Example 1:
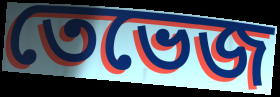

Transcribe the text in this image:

তেভেজ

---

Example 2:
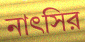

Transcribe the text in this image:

নাৎসির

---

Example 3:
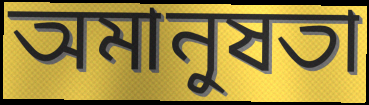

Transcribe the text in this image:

অমানুষতা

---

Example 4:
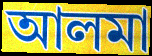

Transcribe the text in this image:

আলমা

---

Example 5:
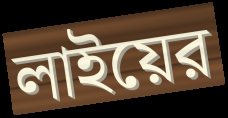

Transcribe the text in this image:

লাইয়ের